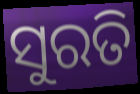
ସୁରତି